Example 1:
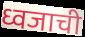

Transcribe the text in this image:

ध्वजाची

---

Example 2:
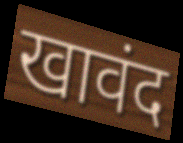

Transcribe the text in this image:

खावंद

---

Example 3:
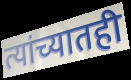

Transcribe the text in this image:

त्यांच्यातही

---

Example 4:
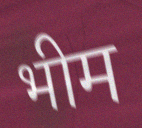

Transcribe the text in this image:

भीम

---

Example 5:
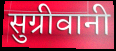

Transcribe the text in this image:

सुग्रीवानी